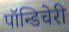
पॉन्डिचेरी